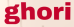
ghori